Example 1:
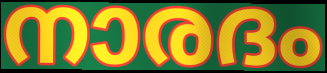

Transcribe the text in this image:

നാരദം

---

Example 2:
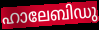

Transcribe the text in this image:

ഹാലേബിഡു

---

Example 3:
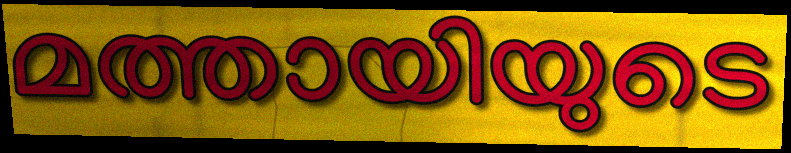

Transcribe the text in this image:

മത്തായിയുടെ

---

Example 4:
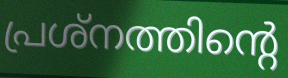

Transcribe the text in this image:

പ്രശ്നത്തിന്റെ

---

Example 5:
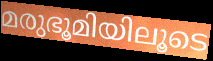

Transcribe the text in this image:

മരുഭൂമിയിലൂടെ